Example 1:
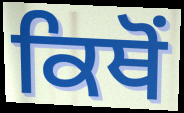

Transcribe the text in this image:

ਕਿਥੋਂ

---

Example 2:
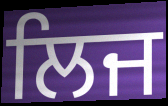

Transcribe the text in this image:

ਲਿਜ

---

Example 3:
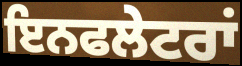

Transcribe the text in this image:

ਇਨਫਲੇਟਰਾਂ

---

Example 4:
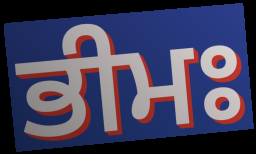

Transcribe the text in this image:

ਭੀਮਃ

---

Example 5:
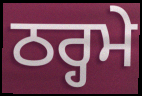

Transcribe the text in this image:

ਠਰ੍ਹਮੇ